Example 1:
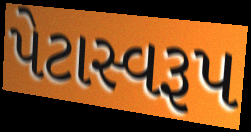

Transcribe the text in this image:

પેટાસ્વરૂપ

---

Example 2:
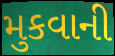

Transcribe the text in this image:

મુકવાની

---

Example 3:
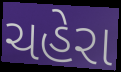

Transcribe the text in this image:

ચહેરા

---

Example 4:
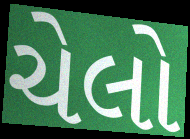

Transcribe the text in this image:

ચેલો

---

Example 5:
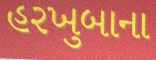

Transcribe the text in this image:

હરખુબાના